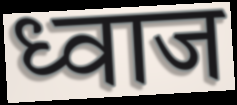
ध्वाज